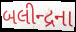
બલીન્દ્રના